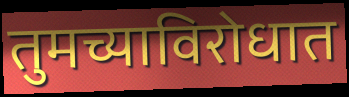
तुमच्याविरोधात